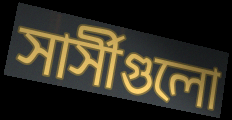
সার্সীগুলো